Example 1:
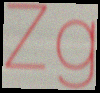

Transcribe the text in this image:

Zg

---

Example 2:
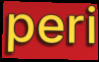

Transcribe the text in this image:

peri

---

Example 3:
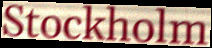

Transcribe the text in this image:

Stockholm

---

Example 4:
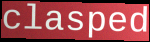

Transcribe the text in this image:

clasped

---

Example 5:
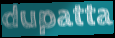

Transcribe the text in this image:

dupatta